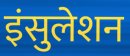
इंसुलेशन